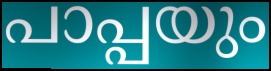
പാപ്പയും